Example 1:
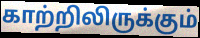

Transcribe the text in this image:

காற்றிலிருக்கும்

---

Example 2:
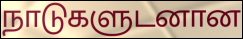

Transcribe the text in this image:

நாடுகளுடனான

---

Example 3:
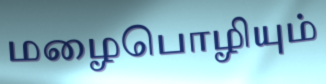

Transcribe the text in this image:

மழைபொழியும்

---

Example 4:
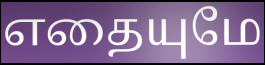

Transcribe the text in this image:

எதையுமே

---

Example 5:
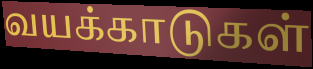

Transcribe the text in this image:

வயக்காடுகள்